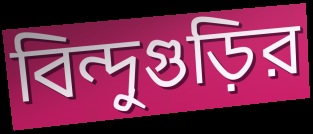
বিন্দুগুড়ির